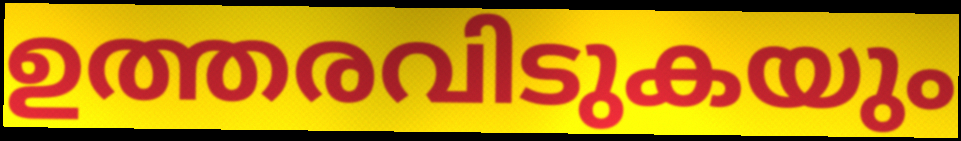
ഉത്തരവിടുകയും